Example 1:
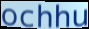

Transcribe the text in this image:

ochhu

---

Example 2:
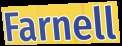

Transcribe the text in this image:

Farnell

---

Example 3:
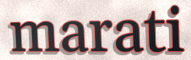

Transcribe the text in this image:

marati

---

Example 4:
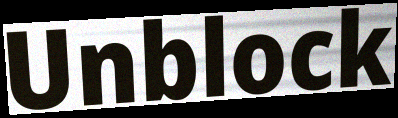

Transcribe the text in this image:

Unblock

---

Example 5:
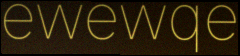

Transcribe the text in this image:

ewewqe